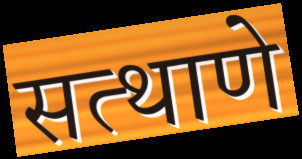
सत्थाणे